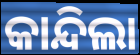
କାନ୍ଦିଲା